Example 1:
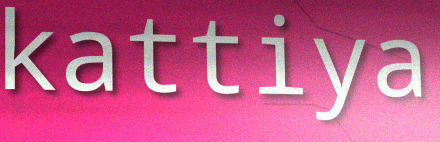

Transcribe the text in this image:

kattiya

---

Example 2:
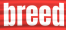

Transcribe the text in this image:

breed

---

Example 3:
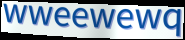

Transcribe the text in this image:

wweewewq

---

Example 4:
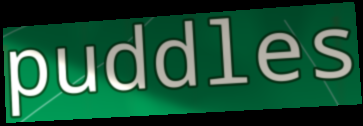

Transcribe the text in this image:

puddles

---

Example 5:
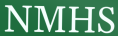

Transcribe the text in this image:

NMHS